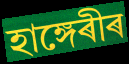
হাঙ্গেৰীৰ